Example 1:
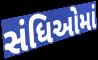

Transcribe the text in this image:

સંધિઓમાં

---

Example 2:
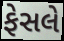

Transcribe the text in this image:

ફેસલે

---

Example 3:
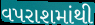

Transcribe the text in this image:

વપરાશમાંથી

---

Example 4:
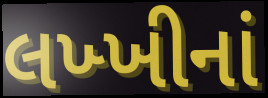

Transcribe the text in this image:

લખ્ખીનાં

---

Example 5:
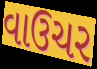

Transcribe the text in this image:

વાઉચર